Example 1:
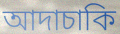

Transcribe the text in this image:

আদাচাকি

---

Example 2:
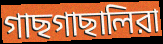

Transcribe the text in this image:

গাছগাছালিরা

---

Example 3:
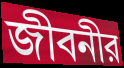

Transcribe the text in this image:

জীবনীর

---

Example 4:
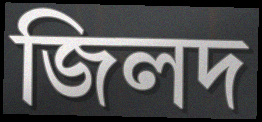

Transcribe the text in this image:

জিলদ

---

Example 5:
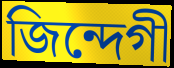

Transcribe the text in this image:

জিন্দেগী